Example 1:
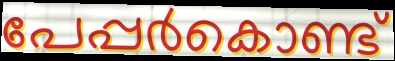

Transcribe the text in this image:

പേപ്പർകൊണ്ട്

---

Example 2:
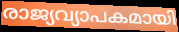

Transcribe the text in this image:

രാജ്യവ്യാപകമായി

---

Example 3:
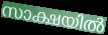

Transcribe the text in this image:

സാക്ഷയിൽ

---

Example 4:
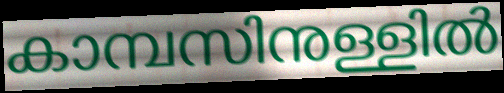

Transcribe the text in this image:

കാമ്പസിനുള്ളിൽ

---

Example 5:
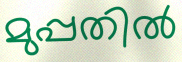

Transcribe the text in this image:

മുപ്പതിൽ